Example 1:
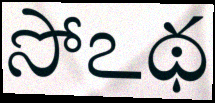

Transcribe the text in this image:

సోఽథ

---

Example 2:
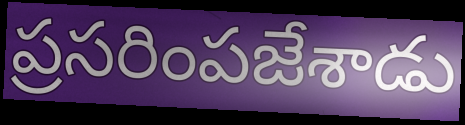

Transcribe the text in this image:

ప్రసరింపజేశాడు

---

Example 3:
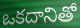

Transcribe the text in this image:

ఒకదానితో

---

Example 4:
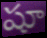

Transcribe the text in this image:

షూ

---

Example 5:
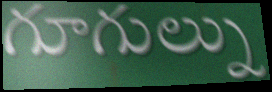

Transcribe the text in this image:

గూగుల్ను